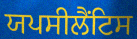
ਯਪਸੀਲੈਂਟਿਸ